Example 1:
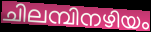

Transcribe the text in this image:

ചിലമ്പിനഴിയം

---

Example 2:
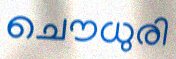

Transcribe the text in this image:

ചൌധുരി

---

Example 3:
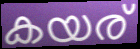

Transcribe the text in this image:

കയര്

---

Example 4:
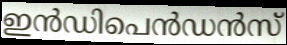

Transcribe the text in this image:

ഇൻഡിപെൻഡൻസ്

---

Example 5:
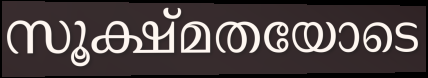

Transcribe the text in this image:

സൂക്ഷ്മതയോടെ